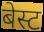
बेस्ट